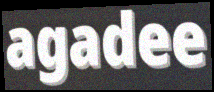
agadee